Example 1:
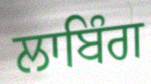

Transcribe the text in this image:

ਲਾਬਿੰਗ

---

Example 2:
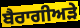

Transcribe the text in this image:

ਬੈਰਾਗੀਅੜੇ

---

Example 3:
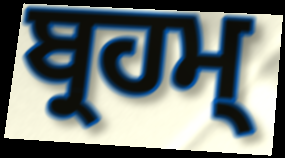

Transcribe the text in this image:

ਬ੍ਰਹਮ੍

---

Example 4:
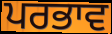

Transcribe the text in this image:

ਪਰਭਾਵ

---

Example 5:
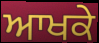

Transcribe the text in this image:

ਆਖਕੇ